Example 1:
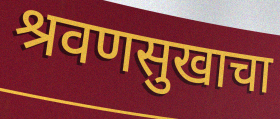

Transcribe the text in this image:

श्रवणसुखाचा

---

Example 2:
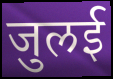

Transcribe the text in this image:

जुलई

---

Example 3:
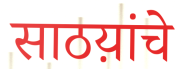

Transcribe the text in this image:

साठय़ांचे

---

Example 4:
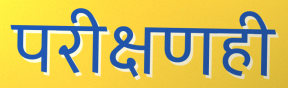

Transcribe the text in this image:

परीक्षणही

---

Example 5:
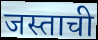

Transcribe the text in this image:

जस्ताची